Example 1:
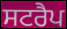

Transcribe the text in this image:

ਸਟਰੈਪ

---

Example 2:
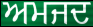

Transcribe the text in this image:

ਅਮਜਦ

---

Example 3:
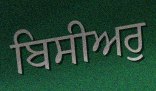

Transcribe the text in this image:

ਬਿਸੀਅਰੁ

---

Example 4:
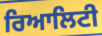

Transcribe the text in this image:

ਰਿਆਲਿਟੀ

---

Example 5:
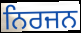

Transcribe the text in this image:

ਨਿਰਜਨ